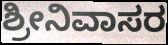
ಶ್ರೀನಿವಾಸರ